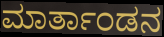
ಮಾರ್ತಾಂಡನ